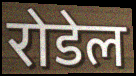
रोडेल